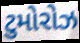
ટુમોરોઝ